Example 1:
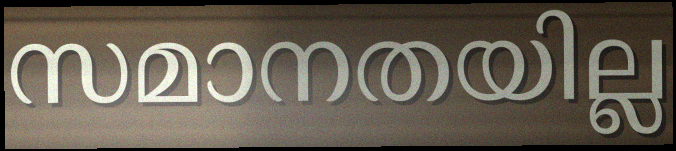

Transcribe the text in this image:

സമാനതയില്ല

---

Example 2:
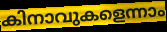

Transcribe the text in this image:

കിനാവുകളെന്നാം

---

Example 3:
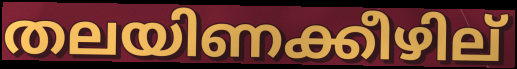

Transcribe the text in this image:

തലയിണക്കീഴില്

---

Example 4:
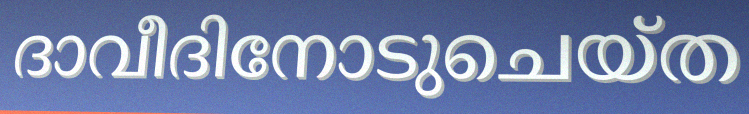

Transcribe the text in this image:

ദാവീദിനോടുചെയ്ത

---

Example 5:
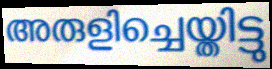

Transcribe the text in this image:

അരുളിച്ചെയ്തിട്ടു